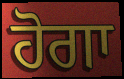
ਹੋਗਾ